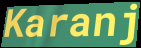
Karanj